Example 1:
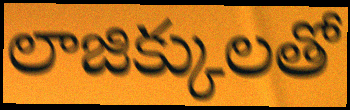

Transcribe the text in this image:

లాజిక్కులతో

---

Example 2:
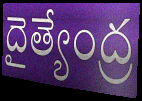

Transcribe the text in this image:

దైత్యేంద్ర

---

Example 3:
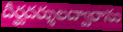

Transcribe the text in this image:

దీర్ఘదర్శులద్వారాను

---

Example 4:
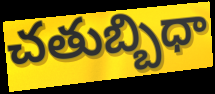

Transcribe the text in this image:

చతుబ్బిధా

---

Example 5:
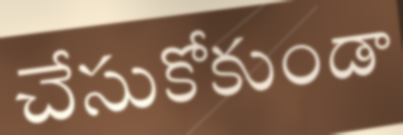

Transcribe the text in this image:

చేసుకోకుండా